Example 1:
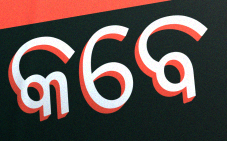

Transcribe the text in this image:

କବେ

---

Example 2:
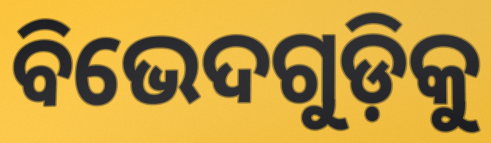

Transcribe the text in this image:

ବିଭେଦଗୁଡ଼ିକୁ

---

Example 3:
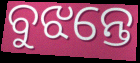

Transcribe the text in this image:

ବୁଝନ୍ତେ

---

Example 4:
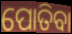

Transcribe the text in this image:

ପୋତିବା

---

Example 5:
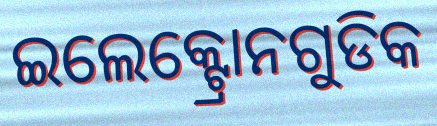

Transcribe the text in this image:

ଇଲେକ୍ଟ୍ରୋନଗୁଡିକ